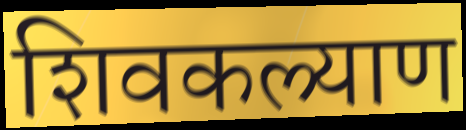
शिवकल्याण